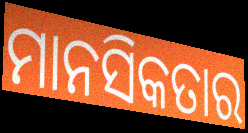
ମାନସିକତାର